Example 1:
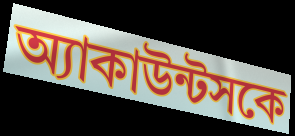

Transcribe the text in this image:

অ্যাকাউন্টসকে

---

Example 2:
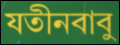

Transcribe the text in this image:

যতীনবাবু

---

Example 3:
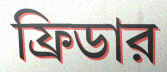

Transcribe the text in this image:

ফ্রিডার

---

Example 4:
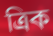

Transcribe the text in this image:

ত্রিক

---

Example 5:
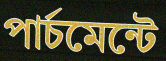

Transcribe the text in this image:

পার্চমেন্টে